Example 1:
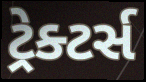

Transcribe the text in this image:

ટ્રેક્ટર્સ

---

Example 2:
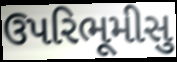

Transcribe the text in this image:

ઉપરિભૂમીસુ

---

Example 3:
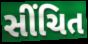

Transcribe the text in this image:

સીંચિત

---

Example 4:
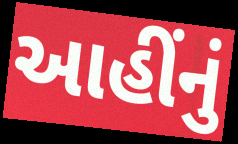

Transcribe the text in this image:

આહીંનું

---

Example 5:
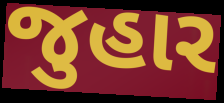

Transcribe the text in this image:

જુહાર